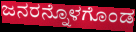
ಜನರನ್ನೊಳಗೊಂಡ